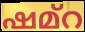
ഷമ്റ